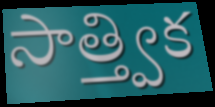
సాత్త్విక